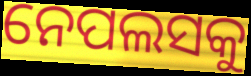
ନେପଲସକୁ